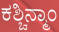
ಕಶ್ಚಿನ್ಮಾಂ